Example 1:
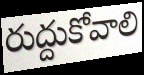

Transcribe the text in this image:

రుద్దుకోవాలి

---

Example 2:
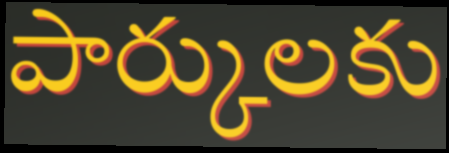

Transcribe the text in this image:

పార్కులకు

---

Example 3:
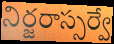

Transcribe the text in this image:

నిర్జరాస్సర్వే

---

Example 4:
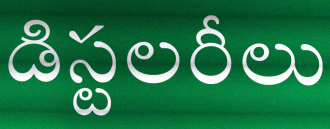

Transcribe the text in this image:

డిస్టలరీలు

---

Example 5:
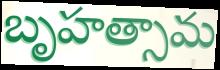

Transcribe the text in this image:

బృహత్సామ